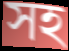
সহ